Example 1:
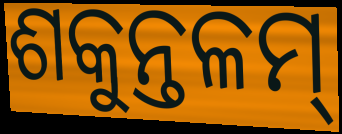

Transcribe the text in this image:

ଶକୁନ୍ତଳମ୍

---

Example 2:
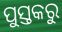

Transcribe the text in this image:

ପୁସ୍ତକରୁ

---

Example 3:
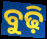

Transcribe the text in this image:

ବୁଢ଼ି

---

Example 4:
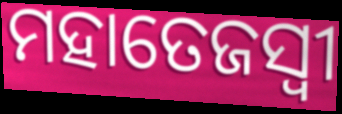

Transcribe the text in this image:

ମହାତେଜସ୍ୱୀ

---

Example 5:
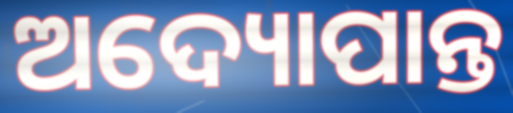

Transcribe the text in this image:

ଅଦ୍ୟୋପାନ୍ତ